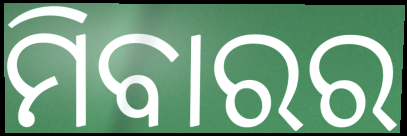
ମିବାରର